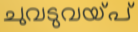
ചുവടുവയ്പ്